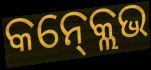
କନ୍କ୍ଲେଭ